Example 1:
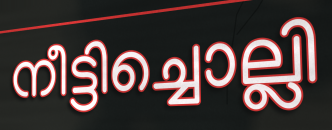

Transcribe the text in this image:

നീട്ടിച്ചൊല്ലി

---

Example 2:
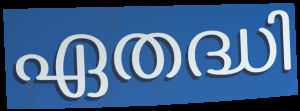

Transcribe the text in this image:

ഏതദ്ധി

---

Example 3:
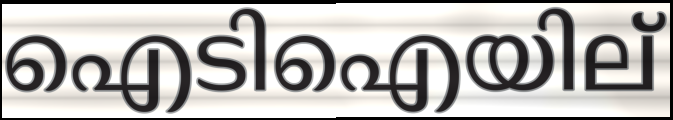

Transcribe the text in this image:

ഐടിഐയില്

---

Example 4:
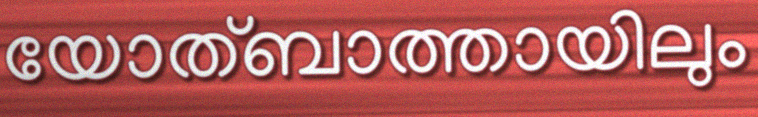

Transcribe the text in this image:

യോത്ബാത്തായിലും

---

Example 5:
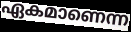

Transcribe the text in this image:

ഏകമാണെന്ന